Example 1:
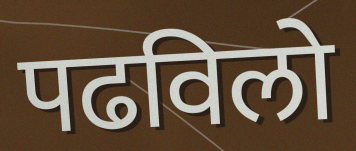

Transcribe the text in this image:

पढविलो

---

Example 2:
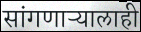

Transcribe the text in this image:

सांगणाऱ्यालाही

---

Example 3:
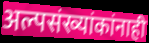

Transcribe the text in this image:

अल्पसंख्यांकांनाही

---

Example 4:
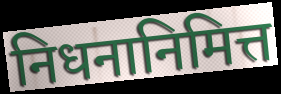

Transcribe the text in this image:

निधनानिमित्त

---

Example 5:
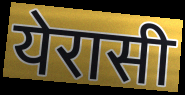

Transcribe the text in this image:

येरासी